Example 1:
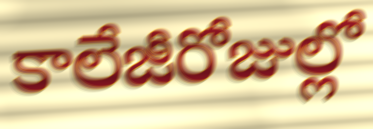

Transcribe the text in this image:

కాలేజీరోజుల్లో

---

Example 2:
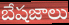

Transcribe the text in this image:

బేషజాలు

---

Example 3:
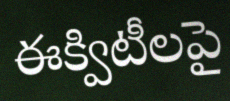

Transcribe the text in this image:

ఈక్విటీలపై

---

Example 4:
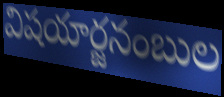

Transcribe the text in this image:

విషయార్జనంబుల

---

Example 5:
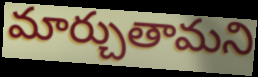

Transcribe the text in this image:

మార్చుతామని